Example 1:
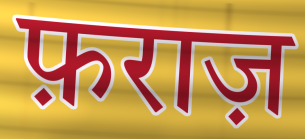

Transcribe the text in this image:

फ़राज़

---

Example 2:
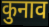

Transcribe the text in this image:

कुनाव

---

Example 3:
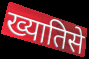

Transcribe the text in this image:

ख्यातिसे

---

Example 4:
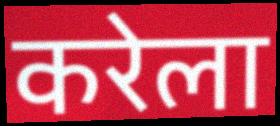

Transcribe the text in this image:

करेला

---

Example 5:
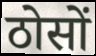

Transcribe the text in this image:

ठोसों